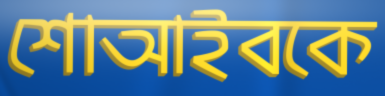
শোআইবকে